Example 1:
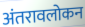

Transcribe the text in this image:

अंतरावलोकन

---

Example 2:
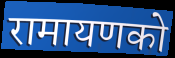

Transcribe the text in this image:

रामायणको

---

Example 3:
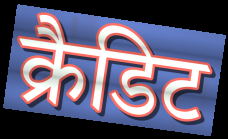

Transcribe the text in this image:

क्रैडिट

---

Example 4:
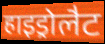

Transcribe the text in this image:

हाइड्रोलैट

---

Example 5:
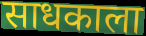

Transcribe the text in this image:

साधकाला